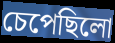
চেপেছিলো